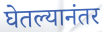
घेतल्यानंतर